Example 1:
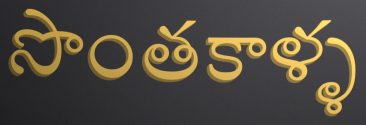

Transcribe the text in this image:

సొంతకాళ్ళ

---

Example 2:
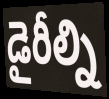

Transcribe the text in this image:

డైరీల్ని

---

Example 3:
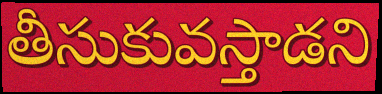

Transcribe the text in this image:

తీసుకువస్తాడని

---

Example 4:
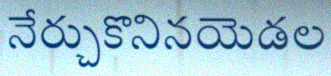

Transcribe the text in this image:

నేర్చుకొనినయెడల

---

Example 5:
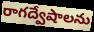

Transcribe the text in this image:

రాగద్వేషాలను